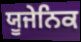
ਯੂਜੇਨਿਕ